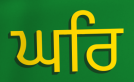
ਘਰਿ